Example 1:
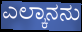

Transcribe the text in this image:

ಎಲ್ಕಾನನು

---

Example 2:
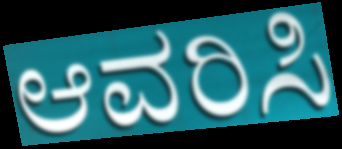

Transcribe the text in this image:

ಆವರಿಸಿ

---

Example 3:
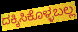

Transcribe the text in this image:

ದಕ್ಕಿಸಿಕೊಳ್ಳಬಲ್ಲ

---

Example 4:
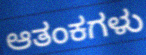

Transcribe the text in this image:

ಆತಂಕಗಳು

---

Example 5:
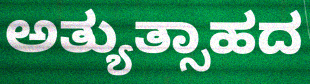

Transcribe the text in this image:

ಅತ್ಯುತ್ಸಾಹದ